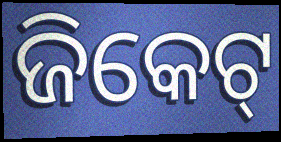
ଜିକେଟ୍